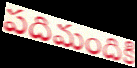
పదిమందికి